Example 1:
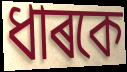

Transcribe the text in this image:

ধাৰকে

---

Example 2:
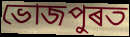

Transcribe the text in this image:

ভোজপুৰত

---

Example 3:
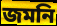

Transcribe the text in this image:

জমনি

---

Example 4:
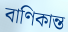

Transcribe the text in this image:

বাণিকান্ত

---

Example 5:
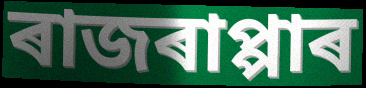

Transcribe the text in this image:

ৰাজৰাপ্পাৰ